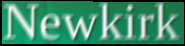
Newkirk